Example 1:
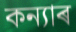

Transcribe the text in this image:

কন্যাৰ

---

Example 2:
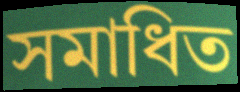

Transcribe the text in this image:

সমাধিত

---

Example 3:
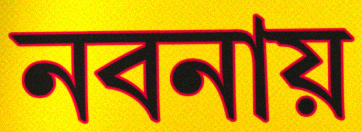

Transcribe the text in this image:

নবনায়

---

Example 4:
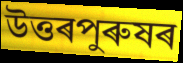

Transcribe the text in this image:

উত্তৰপুৰুষৰ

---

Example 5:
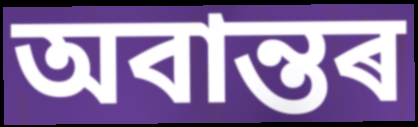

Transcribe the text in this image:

অবান্তৰ